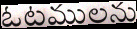
ఓటములను